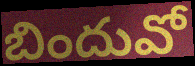
బిందువో